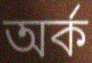
অর্ক